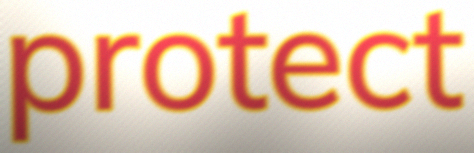
protect